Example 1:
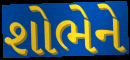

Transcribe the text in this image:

શોભેને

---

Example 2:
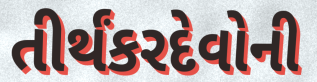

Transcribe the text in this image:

તીર્થંકરદેવોની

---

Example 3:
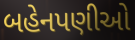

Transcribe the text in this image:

બહેનપણીઓ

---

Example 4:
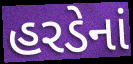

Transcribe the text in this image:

હરડેનાં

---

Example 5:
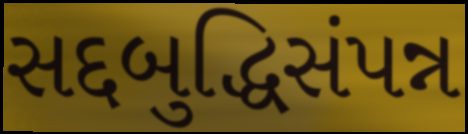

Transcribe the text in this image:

સદ્દબુદ્ધિસંપન્ન